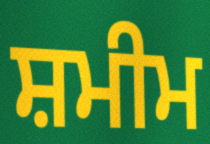
ਸ਼ਮੀਮ